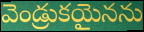
వెండ్రుకయైనను